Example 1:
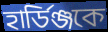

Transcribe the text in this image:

হার্ডিঞ্জকে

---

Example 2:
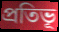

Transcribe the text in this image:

প্রতিভূ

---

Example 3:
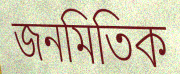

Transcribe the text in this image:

জনমিতিক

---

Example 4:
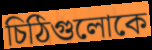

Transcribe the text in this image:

চিঠিগুলোকে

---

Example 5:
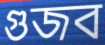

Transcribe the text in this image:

গুজব